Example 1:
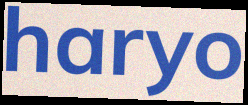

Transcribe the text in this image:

haryo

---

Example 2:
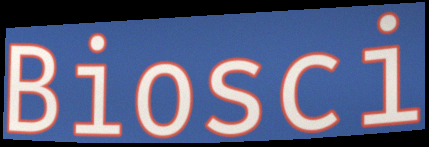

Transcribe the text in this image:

Biosci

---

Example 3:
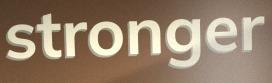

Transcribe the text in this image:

stronger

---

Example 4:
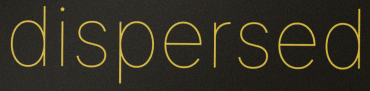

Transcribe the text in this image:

dispersed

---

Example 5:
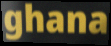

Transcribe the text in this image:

ghana